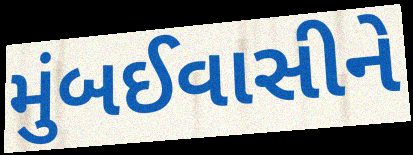
મુંબઈવાસીને